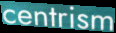
centrism